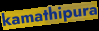
kamathipura